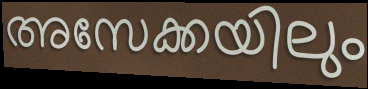
അസേക്കയിലും